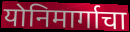
योनिमार्गाचा